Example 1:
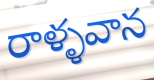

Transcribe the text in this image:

రాళ్ళవాన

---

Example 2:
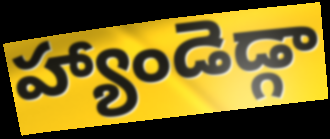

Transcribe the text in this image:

హ్యాండెడ్గా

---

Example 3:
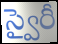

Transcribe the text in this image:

స్వైరీ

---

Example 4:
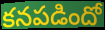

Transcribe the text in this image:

కనపడిందో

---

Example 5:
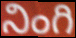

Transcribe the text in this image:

నింగి